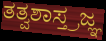
ತತ್ವಶಾಸ್ತ್ರಜ್ಞ